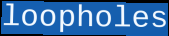
loopholes